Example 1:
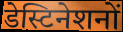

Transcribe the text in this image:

डेस्टिनेशनों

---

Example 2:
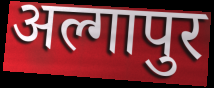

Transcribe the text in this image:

अल्गापुर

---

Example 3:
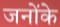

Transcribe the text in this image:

जनोंके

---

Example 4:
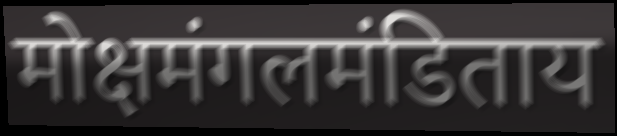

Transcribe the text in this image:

मोक्षमंगलमंडिताय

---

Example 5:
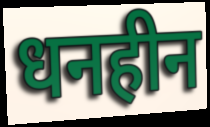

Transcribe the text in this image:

धनहीन